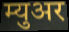
म्युअर